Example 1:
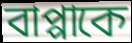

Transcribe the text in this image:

বাপ্পাকে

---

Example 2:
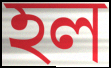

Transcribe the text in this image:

হল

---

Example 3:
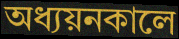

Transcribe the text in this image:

অধ্যয়নকালে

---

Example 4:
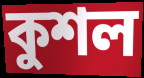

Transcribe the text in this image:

কুশল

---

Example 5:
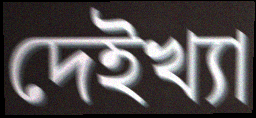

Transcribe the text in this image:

দেইখ্যা